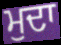
ਮੁਦਾ